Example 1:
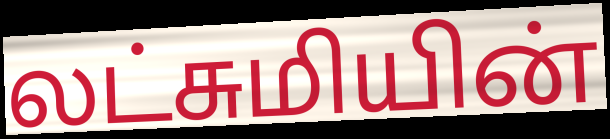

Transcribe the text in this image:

லட்சுமியின்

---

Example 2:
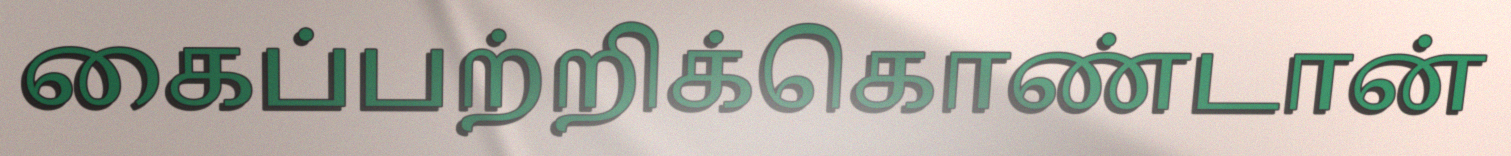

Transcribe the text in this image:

கைப்பற்றிக்கொண்டான்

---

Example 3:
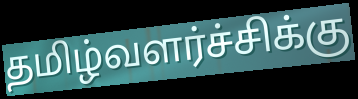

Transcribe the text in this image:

தமிழ்வளர்ச்சிக்கு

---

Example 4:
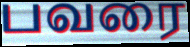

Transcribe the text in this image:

பவரை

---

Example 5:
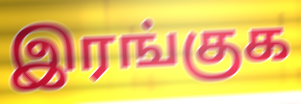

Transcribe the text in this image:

இரங்குக